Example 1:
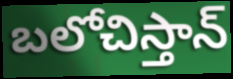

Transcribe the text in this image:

బలోచిస్తాన్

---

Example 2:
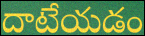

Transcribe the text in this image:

దాటేయడం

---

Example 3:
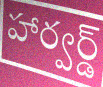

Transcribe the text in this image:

హార్వర్డ్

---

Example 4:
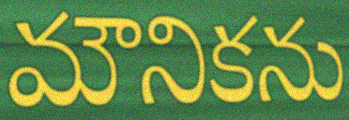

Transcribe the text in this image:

మౌనికను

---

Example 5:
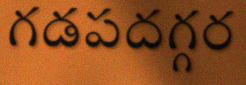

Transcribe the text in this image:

గడపదగ్గర